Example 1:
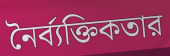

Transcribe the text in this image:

নৈর্ব্যক্তিকতার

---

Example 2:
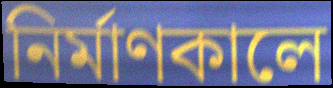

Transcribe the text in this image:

নির্মাণকালে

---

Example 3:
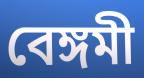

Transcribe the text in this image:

বেঙ্গমী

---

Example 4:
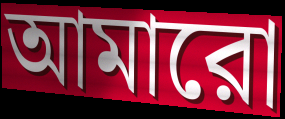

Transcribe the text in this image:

আমারো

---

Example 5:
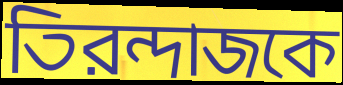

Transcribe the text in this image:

তিরন্দাজকে